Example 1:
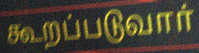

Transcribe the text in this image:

கூறப்படுவார்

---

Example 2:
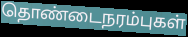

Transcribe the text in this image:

தொண்டைநரம்புகள்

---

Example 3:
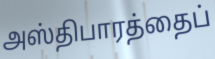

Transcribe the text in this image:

அஸ்திபாரத்தைப்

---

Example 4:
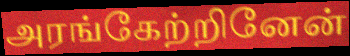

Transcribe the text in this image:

அரங்கேற்றினேன்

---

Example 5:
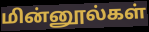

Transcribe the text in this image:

மின்னூல்கள்